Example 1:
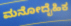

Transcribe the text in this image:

ಮನೋದೈಹಿಕ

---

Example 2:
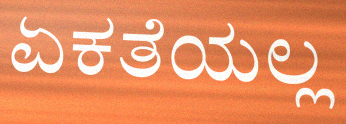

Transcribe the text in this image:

ಏಕತೆಯಲ್ಲ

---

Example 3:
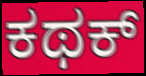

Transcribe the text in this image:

ಕಥಕ್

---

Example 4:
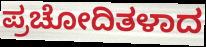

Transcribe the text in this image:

ಪ್ರಚೋದಿತಳಾದ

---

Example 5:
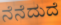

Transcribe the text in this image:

ನೆನೆದುದೆ